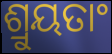
ଶ୍ରୁୟତାଂ